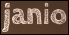
janio